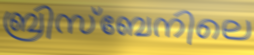
ബ്രിസ്ബേനിലെ